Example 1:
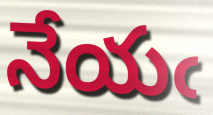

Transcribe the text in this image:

నేయఁ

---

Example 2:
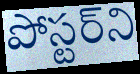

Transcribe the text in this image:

పోస్టర్‌ని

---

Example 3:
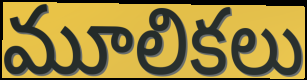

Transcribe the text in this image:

మూలికలు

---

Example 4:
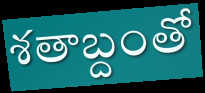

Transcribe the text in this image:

శతాబ్దంతో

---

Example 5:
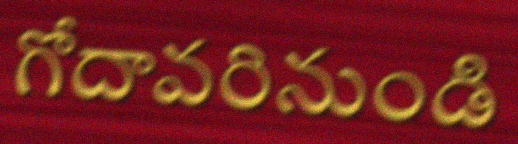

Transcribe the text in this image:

గోదావరినుండి